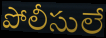
పోలీసులే